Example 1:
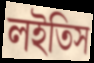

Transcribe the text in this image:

লইতিস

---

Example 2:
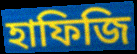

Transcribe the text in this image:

হাফিজি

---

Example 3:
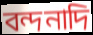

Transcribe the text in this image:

বন্দনাদি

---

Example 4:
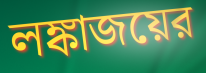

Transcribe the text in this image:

লঙ্কাজয়ের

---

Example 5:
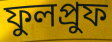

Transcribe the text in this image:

ফুলপ্রুফ